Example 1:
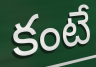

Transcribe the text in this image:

కంటే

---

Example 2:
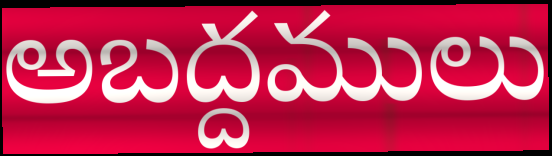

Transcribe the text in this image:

అబద్దములు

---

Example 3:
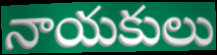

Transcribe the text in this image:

నాయకులు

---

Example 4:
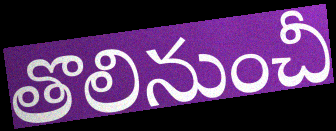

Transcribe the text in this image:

తొలినుంచీ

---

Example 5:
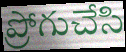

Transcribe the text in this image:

ప్రోగుచేసి